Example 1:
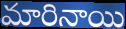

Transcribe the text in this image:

మారినాయి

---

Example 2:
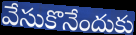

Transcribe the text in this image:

వేసుకొనేందుకు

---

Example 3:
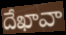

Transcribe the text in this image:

దేఖావా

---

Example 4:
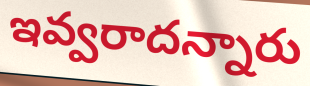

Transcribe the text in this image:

ఇవ్వరాదన్నారు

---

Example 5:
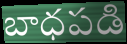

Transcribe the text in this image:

బాధపడి